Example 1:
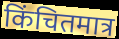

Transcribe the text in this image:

किंचितमात्र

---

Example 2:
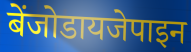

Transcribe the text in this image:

बेंजोडायजेपाइन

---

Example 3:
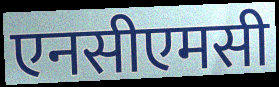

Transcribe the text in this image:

एनसीएमसी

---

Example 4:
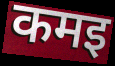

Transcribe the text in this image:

कमइ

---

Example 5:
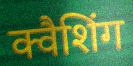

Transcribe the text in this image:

क्वैशिंग